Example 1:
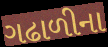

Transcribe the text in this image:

ગઢાળીના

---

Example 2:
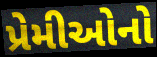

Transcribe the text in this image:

પ્રેમીઓનો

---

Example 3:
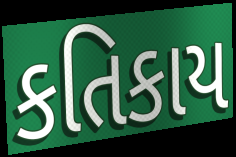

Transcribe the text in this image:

કતિકાય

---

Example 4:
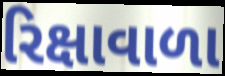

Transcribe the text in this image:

રિક્ષાવાળા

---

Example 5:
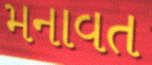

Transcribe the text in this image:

મનાવત